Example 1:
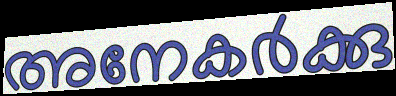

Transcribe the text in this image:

അനേകർക്കു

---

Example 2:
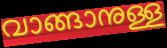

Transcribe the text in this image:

വാങ്ങാനുള്ള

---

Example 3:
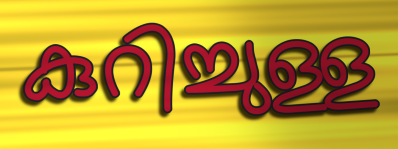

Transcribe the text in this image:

കുറിച്ചുള്ള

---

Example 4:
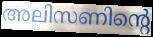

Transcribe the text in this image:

അലിസണിന്റെ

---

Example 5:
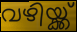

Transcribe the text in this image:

വഴിയ്ക്ക്